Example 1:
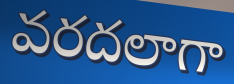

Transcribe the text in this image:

వరదలాగా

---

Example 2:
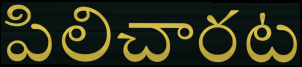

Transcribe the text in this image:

పిలిచారట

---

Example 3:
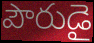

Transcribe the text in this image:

పౌరుడై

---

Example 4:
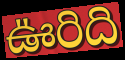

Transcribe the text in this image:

ఊరిది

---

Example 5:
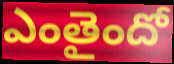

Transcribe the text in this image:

ఎంతైందో